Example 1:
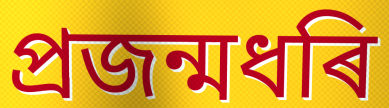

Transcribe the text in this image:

প্ৰজন্মধৰি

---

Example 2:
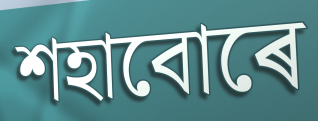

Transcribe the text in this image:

শহাবোৰে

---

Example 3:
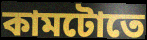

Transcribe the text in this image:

কামটোতে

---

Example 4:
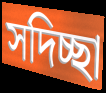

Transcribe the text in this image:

সদিচ্ছা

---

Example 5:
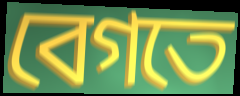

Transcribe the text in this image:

বেগতে